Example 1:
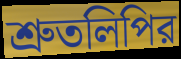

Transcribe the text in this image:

শ্রুতলিপির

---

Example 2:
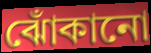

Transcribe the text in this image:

ঝোঁকানো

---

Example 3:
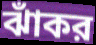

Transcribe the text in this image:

ঝাঁকর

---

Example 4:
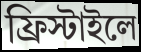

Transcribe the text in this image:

ফ্রিস্টাইলে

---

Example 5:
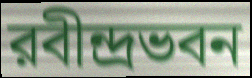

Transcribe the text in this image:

রবীন্দ্রভবন